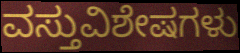
ವಸ್ತುವಿಶೇಷಗಳು